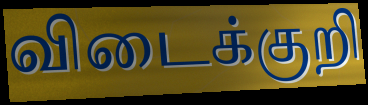
விடைக்குறி